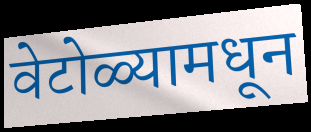
वेटोळ्यामधून